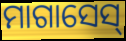
ମାଗାସେସ୍